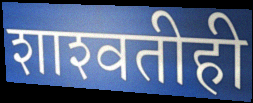
शाश्वतीही